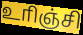
உரிஞ்சி